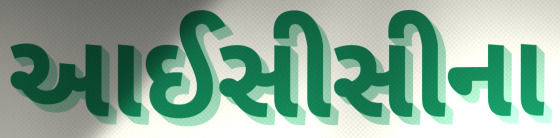
આઈસીસીના